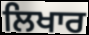
ਲਿਖਾਰ